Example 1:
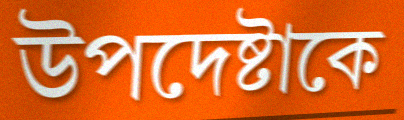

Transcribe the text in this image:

উপদেষ্টাকে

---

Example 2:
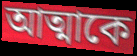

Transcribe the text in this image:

আত্মাকে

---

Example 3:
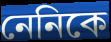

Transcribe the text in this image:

নেনিকে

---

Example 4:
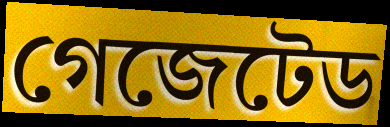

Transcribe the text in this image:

গেজেটেড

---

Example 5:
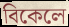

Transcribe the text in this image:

বিকেলে